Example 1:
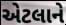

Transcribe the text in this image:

એટલાને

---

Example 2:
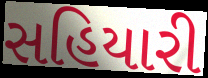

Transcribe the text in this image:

સહિયારી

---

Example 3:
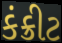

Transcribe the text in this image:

કંક્રીટ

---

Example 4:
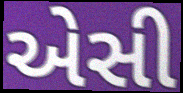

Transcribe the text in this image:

એસી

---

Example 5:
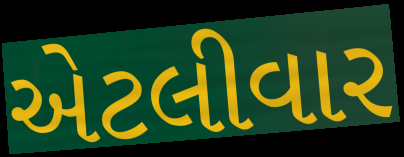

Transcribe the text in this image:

એટલીવાર